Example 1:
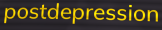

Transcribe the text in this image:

postdepression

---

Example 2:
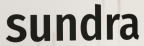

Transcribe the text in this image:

sundra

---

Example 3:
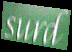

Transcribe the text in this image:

surd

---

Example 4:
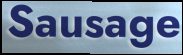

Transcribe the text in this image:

Sausage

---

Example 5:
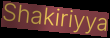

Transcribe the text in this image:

Shakiriyya